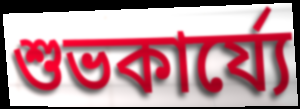
শুভকার্য্যে